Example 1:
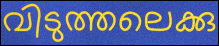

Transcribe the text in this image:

വിടുത്തലെക്കു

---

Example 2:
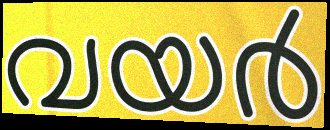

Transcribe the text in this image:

വയർ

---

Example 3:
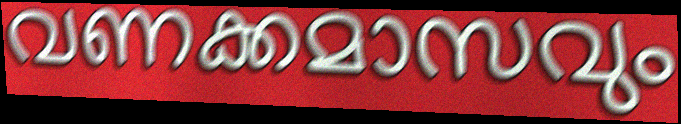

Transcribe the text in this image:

വണക്കമാസവും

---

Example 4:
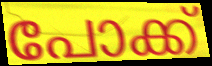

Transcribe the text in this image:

പോക്ക്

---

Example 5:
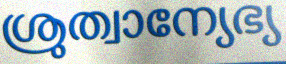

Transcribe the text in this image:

ശ്രുത്വാന്യേഭ്യ